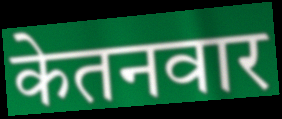
केतनवार